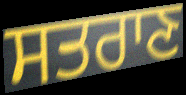
ਸਤਰਾਣ